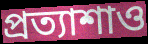
প্রত্যাশাও